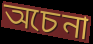
অচেনা